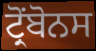
ਟ੍ਰੋਂਬੋਨਸ